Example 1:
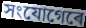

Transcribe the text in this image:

সংযোগেৰে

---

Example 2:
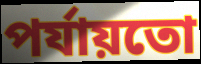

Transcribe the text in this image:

পৰ্যায়তো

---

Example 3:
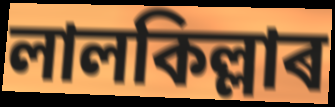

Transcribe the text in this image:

লালকিল্লাৰ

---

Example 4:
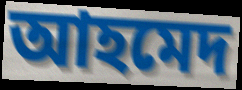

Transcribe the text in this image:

আহমেদ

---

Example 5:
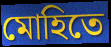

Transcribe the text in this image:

মোহিতে